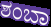
ಶಂಬಾ